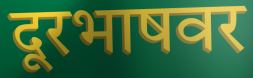
दूरभाषवर